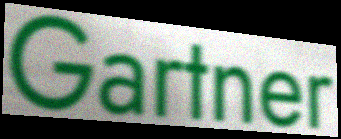
Gartner